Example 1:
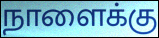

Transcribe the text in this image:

நாளைக்கு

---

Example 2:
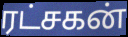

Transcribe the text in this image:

ரட்சகன்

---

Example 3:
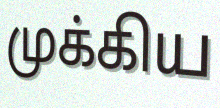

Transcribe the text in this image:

முக்கிய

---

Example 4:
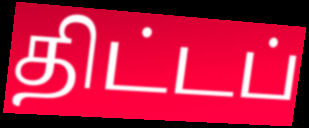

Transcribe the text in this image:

திட்டப்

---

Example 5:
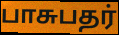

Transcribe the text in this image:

பாசுபதர்